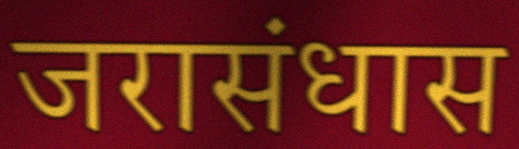
जरासंधास